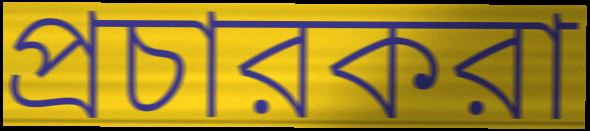
প্রচারকরা